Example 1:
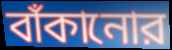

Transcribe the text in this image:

বাঁকানোর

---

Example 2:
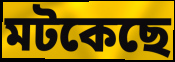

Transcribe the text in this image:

মটকেছে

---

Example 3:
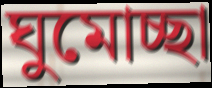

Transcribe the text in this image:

ঘুমোচ্ছা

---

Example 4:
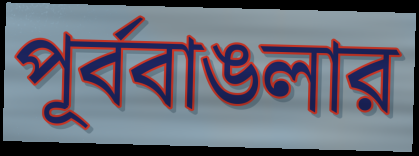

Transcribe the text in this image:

পূর্ববাঙলার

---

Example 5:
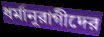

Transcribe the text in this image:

ধর্মানুরাগীদের